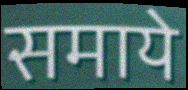
समाये